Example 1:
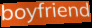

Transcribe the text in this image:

boyfriend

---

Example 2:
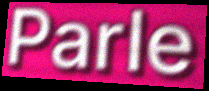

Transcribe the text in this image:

Parle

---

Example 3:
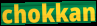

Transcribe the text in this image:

chokkan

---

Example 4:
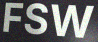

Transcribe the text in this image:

FSW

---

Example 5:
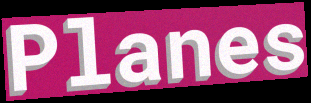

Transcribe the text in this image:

Planes